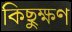
কিছুক্ষণ